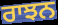
ਰਾਝਨ